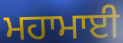
ਮਹਾਮਾਈ